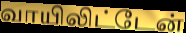
வாயிலிட்டேன்